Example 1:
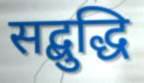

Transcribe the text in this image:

सद्बुद्धि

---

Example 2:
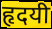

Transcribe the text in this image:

हृदयी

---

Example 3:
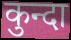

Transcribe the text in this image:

कुन्दा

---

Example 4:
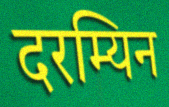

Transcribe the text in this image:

दरम्यिन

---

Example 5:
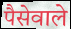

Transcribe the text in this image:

पैसेवाले